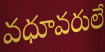
వధూవరులే